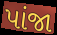
પાંજા